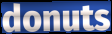
donuts